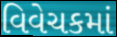
વિવેચકમાં